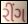
રીંગ